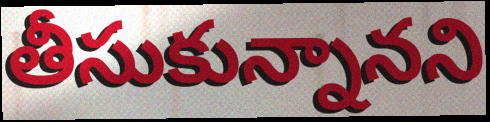
తీసుకున్నానని